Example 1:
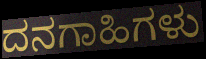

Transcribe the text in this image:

ದನಗಾಹಿಗಳು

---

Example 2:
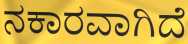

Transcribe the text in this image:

ನಕಾರವಾಗಿದೆ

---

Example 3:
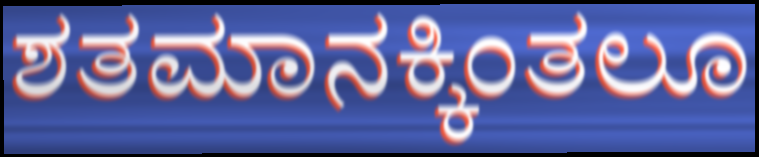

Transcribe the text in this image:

ಶತಮಾನಕ್ಕಿಂತಲೂ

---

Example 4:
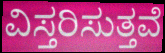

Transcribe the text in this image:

ವಿಸ್ತರಿಸುತ್ತವೆ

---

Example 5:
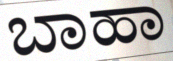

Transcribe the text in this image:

ಬಾಹಾ